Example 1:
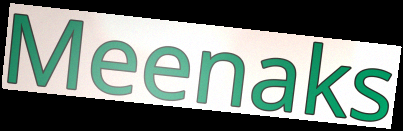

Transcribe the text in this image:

Meenaks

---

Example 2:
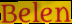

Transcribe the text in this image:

Belen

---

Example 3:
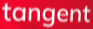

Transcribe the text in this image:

tangent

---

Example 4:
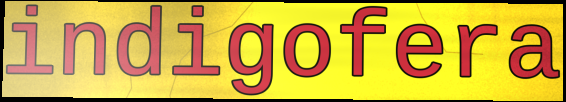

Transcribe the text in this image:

indigofera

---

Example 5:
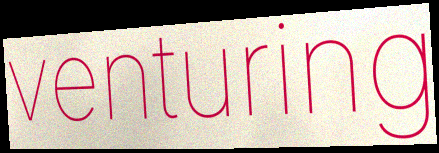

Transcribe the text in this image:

venturing